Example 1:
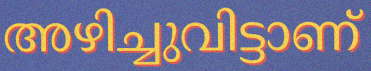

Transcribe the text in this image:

അഴിച്ചുവിട്ടാണ്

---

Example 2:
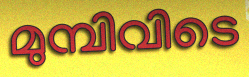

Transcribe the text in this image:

മുമ്പിവിടെ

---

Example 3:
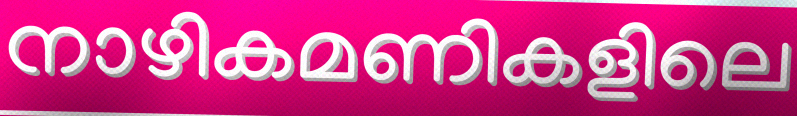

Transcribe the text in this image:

നാഴികമണികളിലെ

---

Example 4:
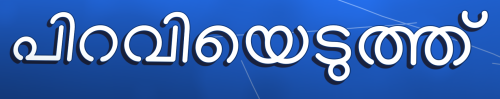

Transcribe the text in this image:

പിറവിയെടുത്ത്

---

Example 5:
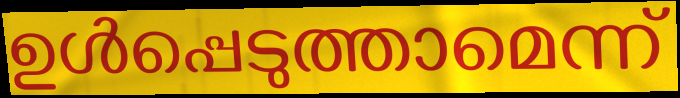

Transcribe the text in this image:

ഉൾപ്പെടുത്താമെന്ന്